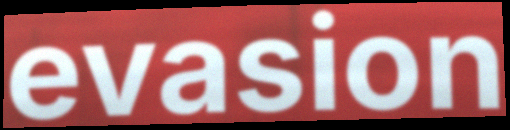
evasion